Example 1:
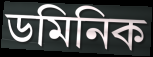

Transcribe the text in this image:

ডমিনিক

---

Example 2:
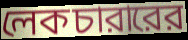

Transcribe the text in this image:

লেকচারারের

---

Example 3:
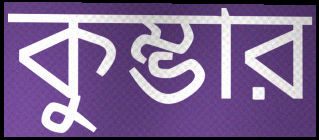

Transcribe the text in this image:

কুম্ভার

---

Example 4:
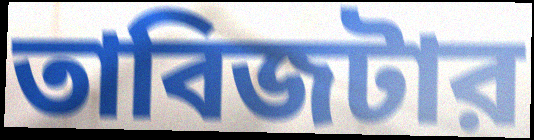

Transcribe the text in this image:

তাবিজটার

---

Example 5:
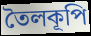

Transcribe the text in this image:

তৈলকূপি